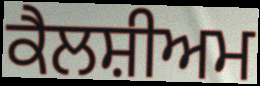
ਕੈਲਸ਼ੀਅਮ